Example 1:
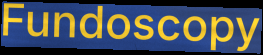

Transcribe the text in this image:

Fundoscopy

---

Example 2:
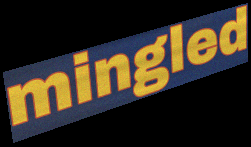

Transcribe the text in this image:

mingled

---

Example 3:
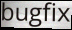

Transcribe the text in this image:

bugfix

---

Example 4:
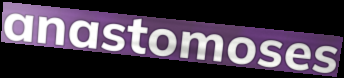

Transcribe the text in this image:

anastomoses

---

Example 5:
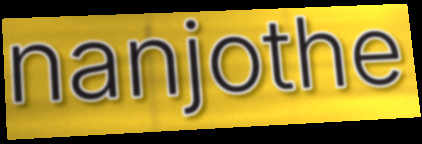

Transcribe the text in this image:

nanjothe